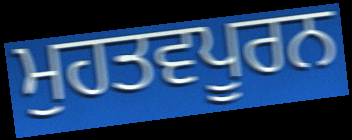
ਮੁਹਤਵਪੂਰਨ